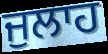
ਜੁਲਾਹ